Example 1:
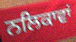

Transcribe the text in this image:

ਨਲਿਕਾਵਾਂ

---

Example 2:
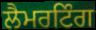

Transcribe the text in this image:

ਲੈਮਰਟਿੰਗ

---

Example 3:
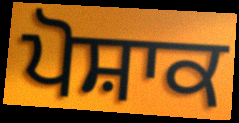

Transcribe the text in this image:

ਪੋਸ਼ਾਕ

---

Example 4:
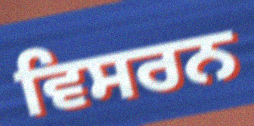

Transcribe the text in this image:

ਵਿਸਰਨ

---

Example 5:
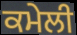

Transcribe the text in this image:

ਕਮੇਲੀ